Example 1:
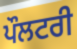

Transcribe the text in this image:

ਪੌਲਟਰੀ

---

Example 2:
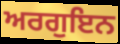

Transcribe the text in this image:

ਅਰਗੁਇਨ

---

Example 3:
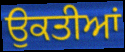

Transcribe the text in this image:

ਉਕਤੀਆਂ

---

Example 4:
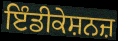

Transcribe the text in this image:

ਇੰਡੀਕੇਸ਼ਨਜ਼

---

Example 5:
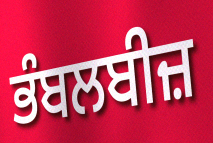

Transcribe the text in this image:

ਭੰਬਲਬੀਜ਼